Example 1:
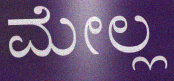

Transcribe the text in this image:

ಮೇಲ್ಲ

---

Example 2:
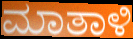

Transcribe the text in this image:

ಮಾತಾಳಿ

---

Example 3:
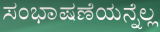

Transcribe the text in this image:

ಸಂಭಾಷಣೆಯನ್ನೆಲ್ಲ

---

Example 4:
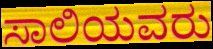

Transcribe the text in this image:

ಸಾಲಿಯವರು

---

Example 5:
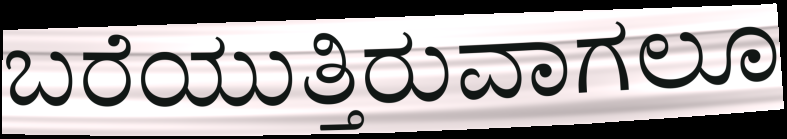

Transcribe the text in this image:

ಬರೆಯುತ್ತಿರುವಾಗಲೂ